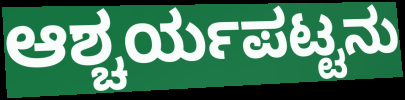
ಆಶ್ಚರ್ಯಪಟ್ಟನು